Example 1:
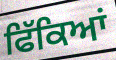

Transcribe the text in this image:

ਫਿੱਕਿਆਂ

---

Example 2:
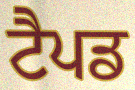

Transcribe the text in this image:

ਟੈਪਡ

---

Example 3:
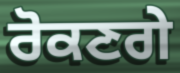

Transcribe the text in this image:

ਰੋਕਣਗੇ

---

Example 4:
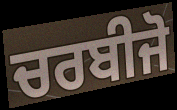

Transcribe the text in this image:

ਚਰਬੀਜੋ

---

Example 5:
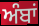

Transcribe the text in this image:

ਅੰਬਾਂ